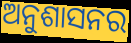
ଅନୁଶାସନର